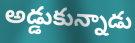
అడ్డుకున్నాడు